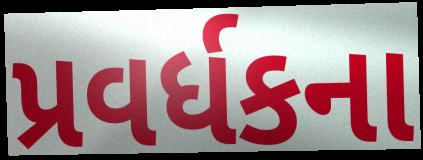
પ્રવર્ધકના